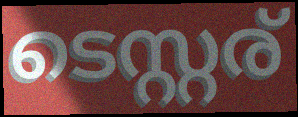
ടെസ്റ്റര്